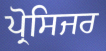
ਪ੍ਰੋਸਿਜਰ